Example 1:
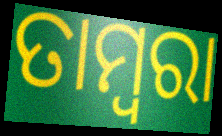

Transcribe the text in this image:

ତାମ୍ବରା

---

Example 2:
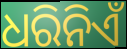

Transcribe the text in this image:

ଧରିନିଏଁ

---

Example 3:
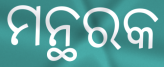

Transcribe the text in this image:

ମନ୍ଥରକ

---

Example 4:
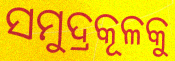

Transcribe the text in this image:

ସମୁଦ୍ରକୂଳକୁ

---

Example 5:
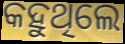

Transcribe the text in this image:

କହୁଥିଲେ